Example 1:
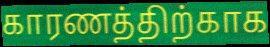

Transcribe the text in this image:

காரணத்திற்காக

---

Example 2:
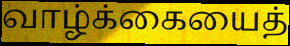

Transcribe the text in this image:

வாழ்க்கையைத்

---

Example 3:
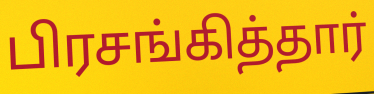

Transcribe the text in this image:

பிரசங்கித்தார்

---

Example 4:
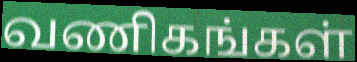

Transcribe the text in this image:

வணிகங்கள்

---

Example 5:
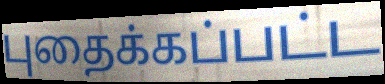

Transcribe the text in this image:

புதைக்கப்பட்ட